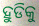
ହୁଡିକୁ